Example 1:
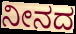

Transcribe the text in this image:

ನೀನದ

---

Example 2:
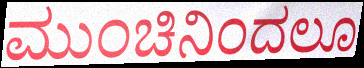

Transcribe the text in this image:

ಮುಂಚಿನಿಂದಲೂ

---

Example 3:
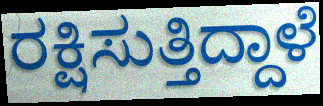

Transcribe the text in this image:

ರಕ್ಷಿಸುತ್ತಿದ್ದಾಳೆ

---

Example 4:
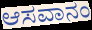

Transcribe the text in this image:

ಆಸವಾನಂ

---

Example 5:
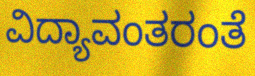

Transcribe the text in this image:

ವಿದ್ಯಾವಂತರಂತೆ